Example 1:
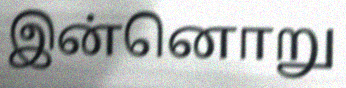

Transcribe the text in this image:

இன்னொறு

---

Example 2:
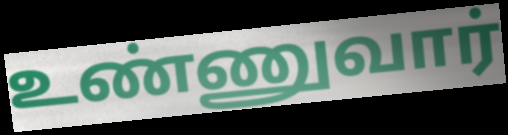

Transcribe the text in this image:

உண்ணுவார்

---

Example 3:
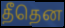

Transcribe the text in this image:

தீதென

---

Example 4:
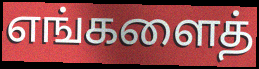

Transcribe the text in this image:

எங்களைத்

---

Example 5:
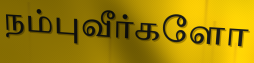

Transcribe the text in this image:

நம்புவீர்களோ